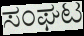
ಸಂಘಟ